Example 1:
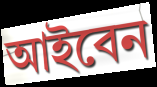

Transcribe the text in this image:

আইবেন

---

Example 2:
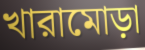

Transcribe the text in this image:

খারামোড়া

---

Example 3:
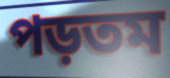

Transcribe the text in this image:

পড়তম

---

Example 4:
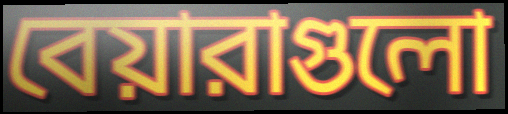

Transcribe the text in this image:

বেয়ারাগুলো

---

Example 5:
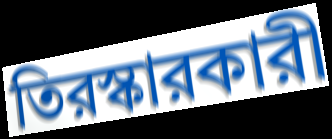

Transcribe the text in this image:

তিরস্কারকারী